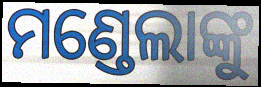
ମଣ୍ଡେଲାଙ୍କୁ